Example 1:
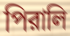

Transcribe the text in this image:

পিরালি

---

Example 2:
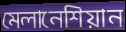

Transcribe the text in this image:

মেলানেশিয়ান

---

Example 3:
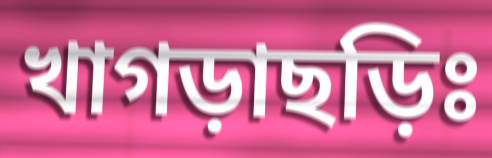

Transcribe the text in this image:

খাগড়াছড়িঃ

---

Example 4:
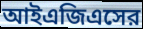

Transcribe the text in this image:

আইএজিএসের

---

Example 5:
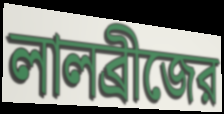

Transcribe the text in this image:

লালব্রীজের